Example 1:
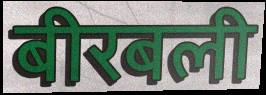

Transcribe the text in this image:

बीरबली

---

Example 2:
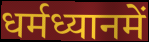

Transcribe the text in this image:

धर्मध्यानमें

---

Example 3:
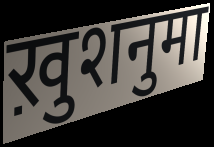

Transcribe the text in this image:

ख़ुशनुमा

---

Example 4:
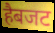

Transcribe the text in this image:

हैबजट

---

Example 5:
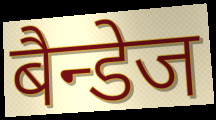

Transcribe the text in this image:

बैन्डेज